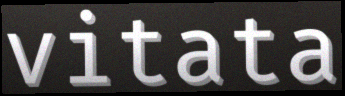
vitata